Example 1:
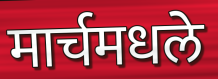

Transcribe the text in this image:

मार्चमधले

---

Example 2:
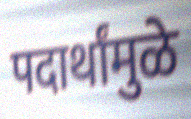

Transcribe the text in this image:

पदार्थांमुळे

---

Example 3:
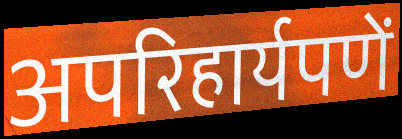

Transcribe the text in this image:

अपरिहार्यपणें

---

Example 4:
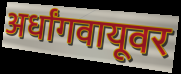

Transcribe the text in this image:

अर्धांगवायूवर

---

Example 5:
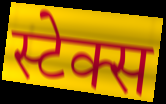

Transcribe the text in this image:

स्टेक्स